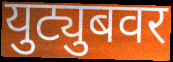
युट्युबवर